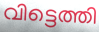
വിട്ടെത്തി